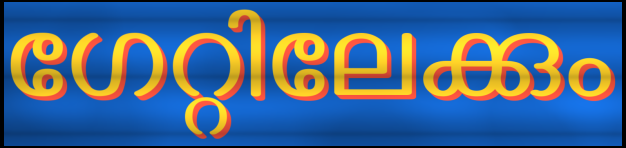
ഗേറ്റിലേക്കും